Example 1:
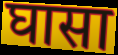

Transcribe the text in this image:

घासा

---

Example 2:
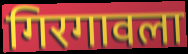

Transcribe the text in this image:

गिरगावला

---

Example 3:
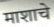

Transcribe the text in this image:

माशाचे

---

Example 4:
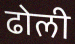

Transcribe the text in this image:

ढोली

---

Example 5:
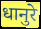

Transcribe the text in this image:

धानुरे